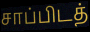
சாப்பிடத்